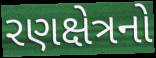
રણક્ષેત્રનો